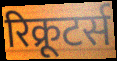
रिक्रूटर्स